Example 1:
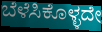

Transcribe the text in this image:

ಬೆಳೆಸಿಕೊಳ್ಳದೇ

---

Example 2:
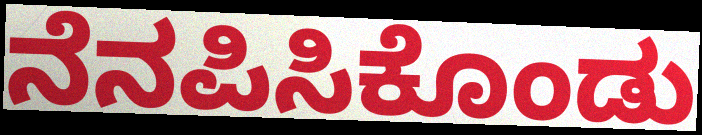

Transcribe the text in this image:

ನೆನಪಿಸಿಕೊಂಡು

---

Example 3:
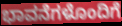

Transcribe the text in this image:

ಭಾವನೆಗಳೊಂದಿಗೆ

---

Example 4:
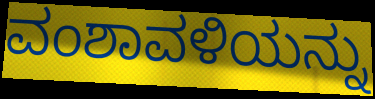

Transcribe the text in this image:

ವಂಶಾವಳಿಯನ್ನು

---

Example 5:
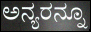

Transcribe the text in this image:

ಅನ್ಯರನ್ನೂ